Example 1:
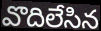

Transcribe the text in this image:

వొదిలేసిన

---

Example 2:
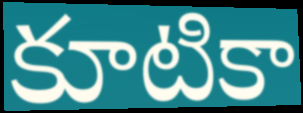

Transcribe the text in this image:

కూటికా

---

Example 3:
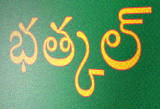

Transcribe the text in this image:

భత్కల్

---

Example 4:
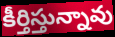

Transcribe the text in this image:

కీర్తిస్తున్నావు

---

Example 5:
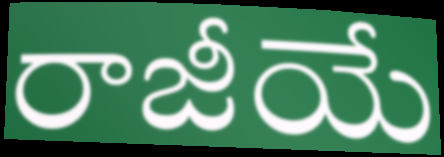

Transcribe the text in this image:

రాజీయే